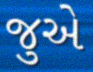
જુએ